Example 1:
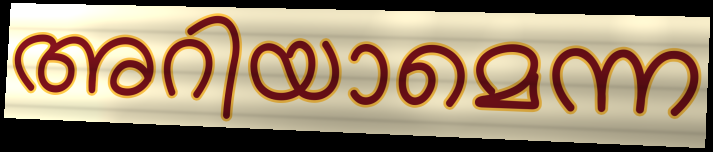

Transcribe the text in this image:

അറിയാമെന്ന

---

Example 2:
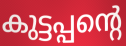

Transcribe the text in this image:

കുട്ടപ്പന്റെ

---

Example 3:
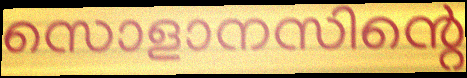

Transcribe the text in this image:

സൊളാനസിന്റെ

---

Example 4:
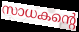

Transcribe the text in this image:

സാധകന്റെ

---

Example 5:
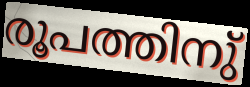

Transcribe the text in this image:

രൂപത്തിനു്